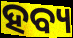
ହବ୍ୟ